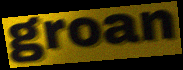
groan